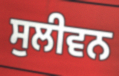
ਸੁਲੀਵਨ